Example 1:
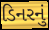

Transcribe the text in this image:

ડિનરનું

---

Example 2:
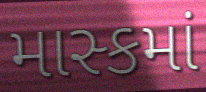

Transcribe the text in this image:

માસ્કમાં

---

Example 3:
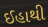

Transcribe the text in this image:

ઈહાથી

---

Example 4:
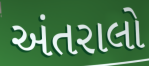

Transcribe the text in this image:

અંતરાલો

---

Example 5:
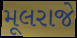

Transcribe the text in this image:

મૂલરાજે